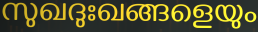
സുഖദുഃഖങ്ങളെയും